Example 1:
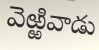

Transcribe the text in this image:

వెఱ్ఱివాడు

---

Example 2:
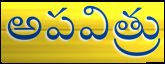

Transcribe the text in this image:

అపవిత్రు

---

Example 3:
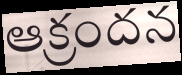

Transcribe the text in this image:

ఆక్రందన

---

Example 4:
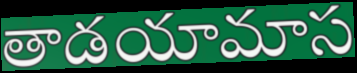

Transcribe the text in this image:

తాడయామాస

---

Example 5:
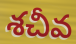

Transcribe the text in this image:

శచీవ